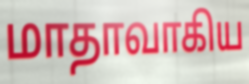
மாதாவாகிய